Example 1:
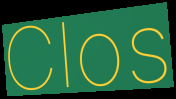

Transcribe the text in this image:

Clos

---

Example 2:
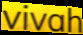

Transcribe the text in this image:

vivah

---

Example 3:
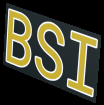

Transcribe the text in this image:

BSI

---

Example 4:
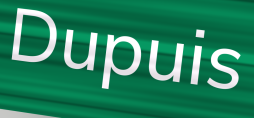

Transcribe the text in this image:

Dupuis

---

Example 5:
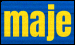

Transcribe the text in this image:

maje